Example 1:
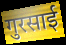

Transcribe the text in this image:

गुरसाई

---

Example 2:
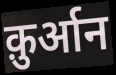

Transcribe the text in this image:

क़ुर्आन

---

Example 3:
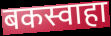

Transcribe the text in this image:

बकस्वाहा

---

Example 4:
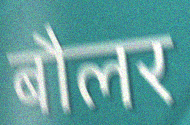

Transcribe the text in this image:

बौलर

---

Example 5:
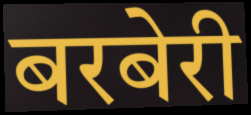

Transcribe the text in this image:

बरबेरी